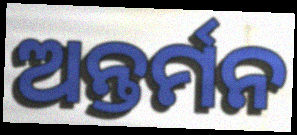
ଅନ୍ତର୍ମନ